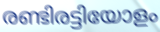
രണ്ടിരട്ടിയോളം